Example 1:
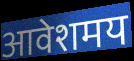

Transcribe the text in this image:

आवेशमय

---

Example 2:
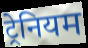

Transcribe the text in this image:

ट्रेनियम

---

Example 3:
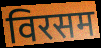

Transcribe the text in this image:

विरसम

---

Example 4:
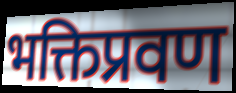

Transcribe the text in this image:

भक्तिप्रवण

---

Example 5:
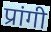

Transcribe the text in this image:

प्रांगी